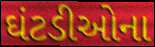
ઘંટડીઓના